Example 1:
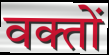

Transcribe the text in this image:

वक्तों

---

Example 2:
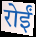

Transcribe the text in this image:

रोईं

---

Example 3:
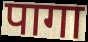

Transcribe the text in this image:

पागा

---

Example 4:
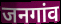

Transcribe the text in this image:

जनगांव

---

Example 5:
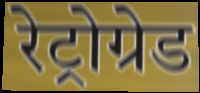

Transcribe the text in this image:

रेट्रोग्रेड